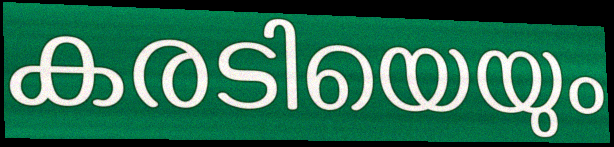
കരടിയെയും